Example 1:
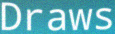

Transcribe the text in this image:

Draws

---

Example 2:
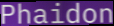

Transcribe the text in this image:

Phaidon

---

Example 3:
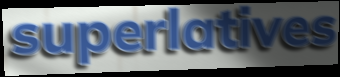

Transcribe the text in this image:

superlatives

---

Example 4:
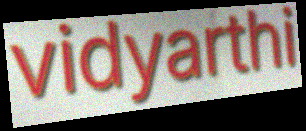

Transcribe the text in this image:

vidyarthi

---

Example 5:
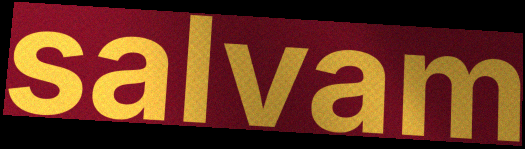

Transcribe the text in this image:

salvam